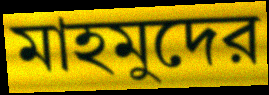
মাহমুদের